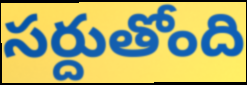
సర్దుతోంది